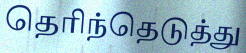
தெரிந்தெடுத்து